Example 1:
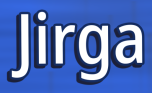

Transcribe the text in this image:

Jirga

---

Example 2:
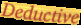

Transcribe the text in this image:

Deductive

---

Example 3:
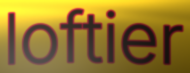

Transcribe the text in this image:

loftier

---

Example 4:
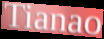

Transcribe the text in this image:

Tianao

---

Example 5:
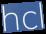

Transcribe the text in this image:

hcl